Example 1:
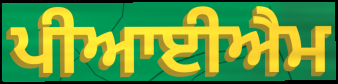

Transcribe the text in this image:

ਪੀਆਈਐਮ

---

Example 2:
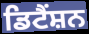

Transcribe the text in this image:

ਡਿਟੈਂਸ਼ਨ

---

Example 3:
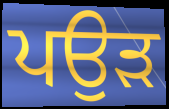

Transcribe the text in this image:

ਪਉੜ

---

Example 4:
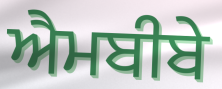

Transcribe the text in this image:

ਐਮਬੀਬੇ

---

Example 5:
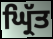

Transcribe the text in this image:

ਘ੍ਰਿੱਤ